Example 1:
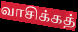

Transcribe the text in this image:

வாசிக்கத்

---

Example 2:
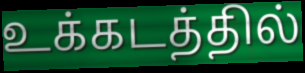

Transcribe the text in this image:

உக்கடத்தில்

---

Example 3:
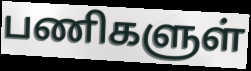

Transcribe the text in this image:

பணிகளுள்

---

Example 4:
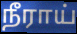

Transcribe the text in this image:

நீராய்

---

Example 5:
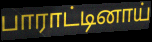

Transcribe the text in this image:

பாராட்டினாய்